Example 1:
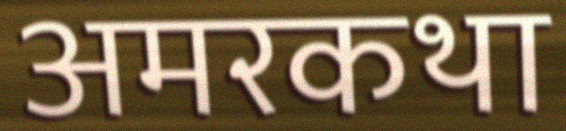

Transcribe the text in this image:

अमरकथा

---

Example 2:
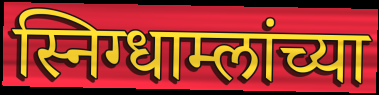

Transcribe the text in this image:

स्निग्धाम्लांच्या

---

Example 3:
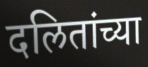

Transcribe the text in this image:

दलितांच्या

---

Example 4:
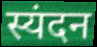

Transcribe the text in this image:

स्यंदन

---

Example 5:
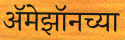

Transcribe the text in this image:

ॲमेझॉनच्या